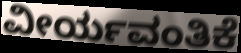
ವೀರ್ಯವಂತಿಕೆ